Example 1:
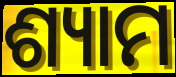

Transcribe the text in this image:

ଶ୍ୟାମ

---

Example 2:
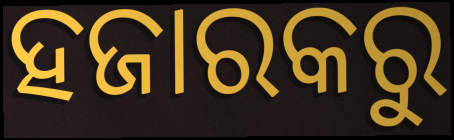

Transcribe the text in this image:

ହଜାରକରୁ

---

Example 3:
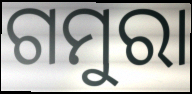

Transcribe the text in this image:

ଗମୁରା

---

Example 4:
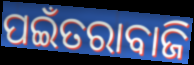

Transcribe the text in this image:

ପଇଁତରାବାଜି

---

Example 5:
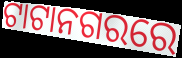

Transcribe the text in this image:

ଟାଟାନଗରରେ